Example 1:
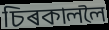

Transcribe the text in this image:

চিৰকাললৈ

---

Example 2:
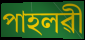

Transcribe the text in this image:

পাহলৱী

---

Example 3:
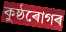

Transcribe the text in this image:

কুষ্ঠৰোগৰ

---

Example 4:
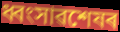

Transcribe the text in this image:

ধ্বংসাৱশেষৰ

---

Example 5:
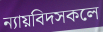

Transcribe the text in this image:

ন্যায়বিদসকলে